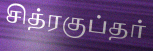
சித்ரகுப்தர்